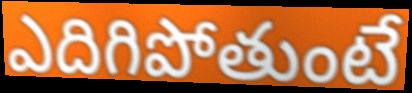
ఎదిగిపోతుంటే